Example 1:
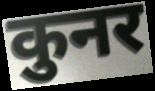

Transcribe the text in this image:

कुनर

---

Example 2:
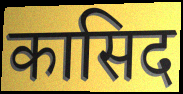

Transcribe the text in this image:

कासिद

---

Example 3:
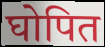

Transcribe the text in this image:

घोपित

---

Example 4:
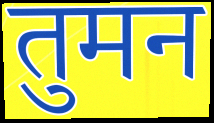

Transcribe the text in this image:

तुमन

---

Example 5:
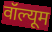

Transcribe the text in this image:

वॉल्यूम